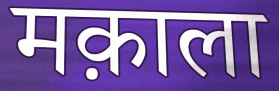
मक़ाला